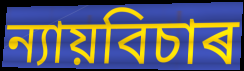
ন্যায়বিচাৰ